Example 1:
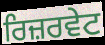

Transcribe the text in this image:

ਰਿਜ਼ਰਵੇਟ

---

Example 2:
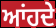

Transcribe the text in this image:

ਆਂਹਦੇ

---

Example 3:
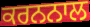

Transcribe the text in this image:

ਕਰਨਨਾਲ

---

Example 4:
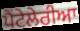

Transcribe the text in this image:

ਪੈਂਟੇਲੇਰੀਆ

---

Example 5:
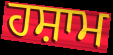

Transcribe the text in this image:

ਹਸ਼ਾਮ